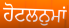
ਹੋਟਲਨੁਮਾਂ